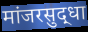
मांजरसुद्धा